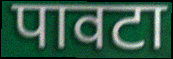
पावटा